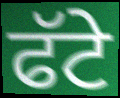
ਫੱਟੇ